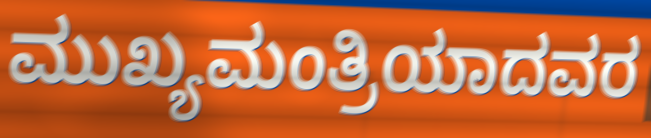
ಮುಖ್ಯಮಂತ್ರಿಯಾದವರ